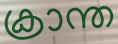
ക്രാന്ത